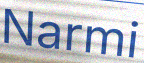
Narmi